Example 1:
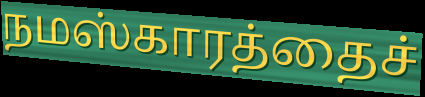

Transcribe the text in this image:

நமஸ்காரத்தைச்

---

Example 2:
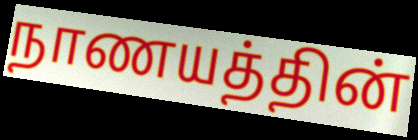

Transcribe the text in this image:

நாணயத்தின்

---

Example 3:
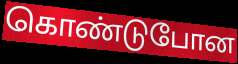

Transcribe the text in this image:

கொண்டுபோன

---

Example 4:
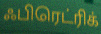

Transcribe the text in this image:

ஃபிரெட்ரிக்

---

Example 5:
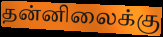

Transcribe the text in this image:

தன்னிலைக்கு